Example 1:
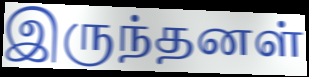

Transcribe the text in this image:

இருந்தனள்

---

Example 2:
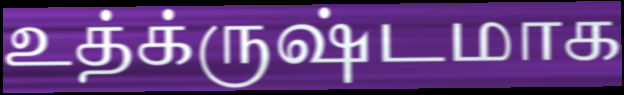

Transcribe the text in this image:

உத்க்ருஷ்டமாக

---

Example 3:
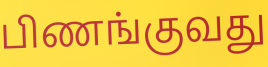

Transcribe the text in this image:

பிணங்குவது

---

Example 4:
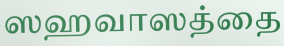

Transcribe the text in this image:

ஸஹவாஸத்தை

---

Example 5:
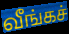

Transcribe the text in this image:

வீங்கச்